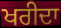
ਖਰੀਦਾ